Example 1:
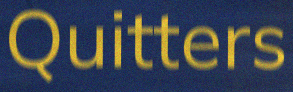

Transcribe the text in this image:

Quitters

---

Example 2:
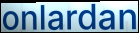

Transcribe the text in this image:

onlardan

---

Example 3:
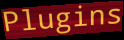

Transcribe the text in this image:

Plugins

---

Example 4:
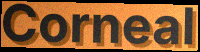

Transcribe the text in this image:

Corneal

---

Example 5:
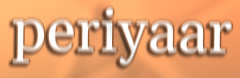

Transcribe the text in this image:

periyaar